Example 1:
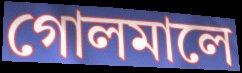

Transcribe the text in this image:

গোলমালে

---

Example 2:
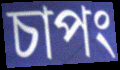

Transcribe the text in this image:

চাপং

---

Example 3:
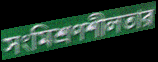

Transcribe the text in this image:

সংমিশ্রণশীলতার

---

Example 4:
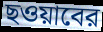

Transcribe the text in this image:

ছওয়াবের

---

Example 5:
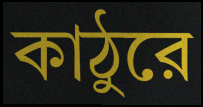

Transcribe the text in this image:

কাঠুরে